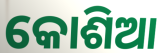
କୋଶିଆ